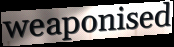
weaponised